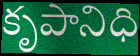
కృపానిధి